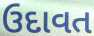
ઉદાવત